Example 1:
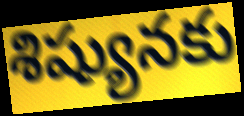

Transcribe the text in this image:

శిష్యునకు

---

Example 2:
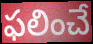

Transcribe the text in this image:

ఫలించే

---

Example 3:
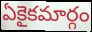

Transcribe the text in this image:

ఏకైకమార్గం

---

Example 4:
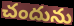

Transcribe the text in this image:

చందును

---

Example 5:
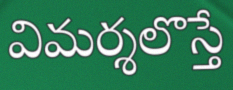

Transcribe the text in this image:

విమర్శలొస్తే